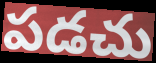
పడచు